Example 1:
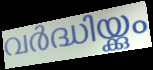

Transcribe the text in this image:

വർദ്ധിയ്ക്കും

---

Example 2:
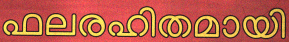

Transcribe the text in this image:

ഫലരഹിതമായി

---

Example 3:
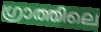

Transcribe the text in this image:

ഗ്രാത്തിലെ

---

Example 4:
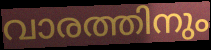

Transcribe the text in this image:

വാരത്തിനും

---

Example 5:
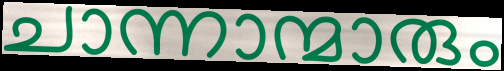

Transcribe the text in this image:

ചാന്നാന്മാരും